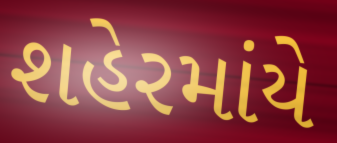
શહેરમાંયે